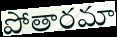
పోతారమా